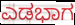
ಎಡಭಾಗ